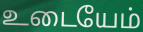
உடையேம்